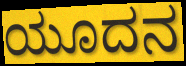
ಯೂದನ